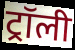
ट्रॉली